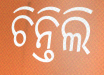
ଚିନ୍ତିଲି